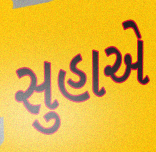
સુહાએ